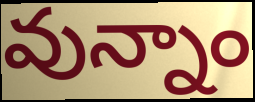
వున్నాం